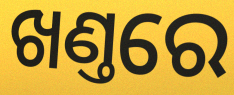
ଖଣ୍ତରେ